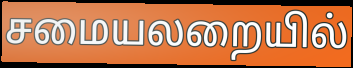
சமையலறையில்